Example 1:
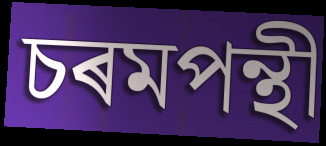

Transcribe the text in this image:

চৰমপন্থী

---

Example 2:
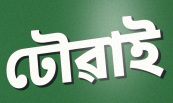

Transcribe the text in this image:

ঢৌৱাই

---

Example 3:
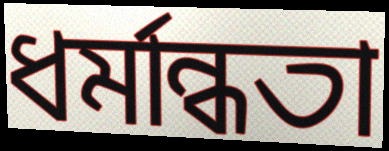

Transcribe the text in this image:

ধৰ্মান্ধতা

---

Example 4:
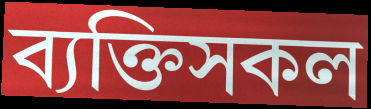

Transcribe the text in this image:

ব্যক্তিসকল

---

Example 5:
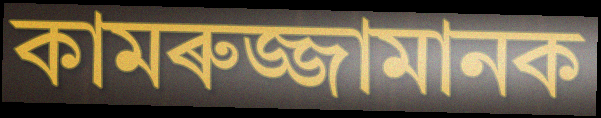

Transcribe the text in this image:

কামৰুজ্জামানক